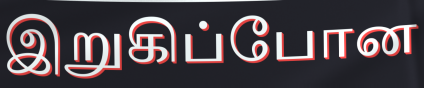
இறுகிப்போன